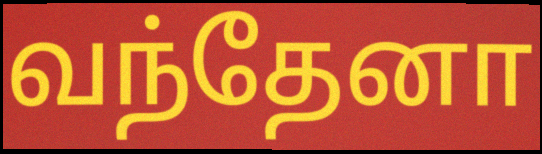
வந்தேனா